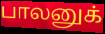
பாலனுக்